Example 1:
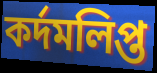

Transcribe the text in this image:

কর্দমলিপ্ত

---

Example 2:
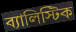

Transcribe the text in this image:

ব্যালিস্টিক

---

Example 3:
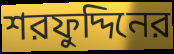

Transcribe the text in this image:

শরফুদ্দিনের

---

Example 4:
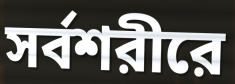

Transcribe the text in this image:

সর্বশরীরে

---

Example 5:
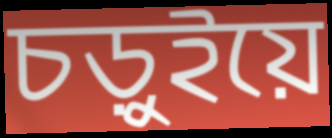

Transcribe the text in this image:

চড়ুইয়ে